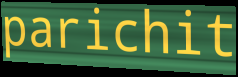
parichit